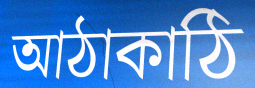
আঠাকাঠি